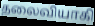
தலைவியாகி